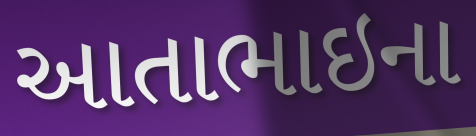
આતાભાઇના